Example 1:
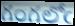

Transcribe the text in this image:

గంగలోఁ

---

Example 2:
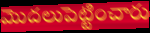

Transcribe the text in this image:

మొదలుపెట్టించారు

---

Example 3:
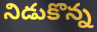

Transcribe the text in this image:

నిడుకొన్న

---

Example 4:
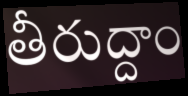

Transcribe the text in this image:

తీరుద్దాం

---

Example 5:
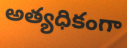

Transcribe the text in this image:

అత్యధికంగా